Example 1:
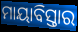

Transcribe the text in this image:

ମାୟାବିସ୍ତାର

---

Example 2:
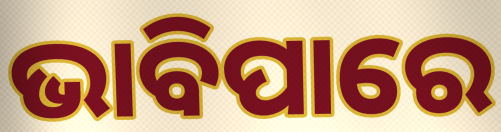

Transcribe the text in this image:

ଭାବିପାରେ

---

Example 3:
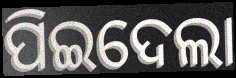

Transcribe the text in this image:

ପିଇଦେଲା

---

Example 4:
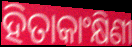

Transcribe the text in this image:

ହିତାକାଂକ୍ଷିଣୀ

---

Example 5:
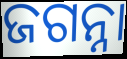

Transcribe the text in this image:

ଜଗନ୍ନା